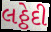
લઠ્ઠેદી